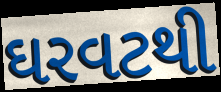
ઘરવટથી